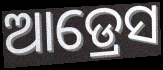
ଆଡ୍ରେସ